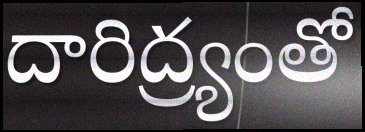
దారిద్ర్యంతో